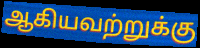
ஆகியவற்றுக்கு